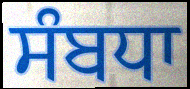
ਸੰਬਧਾ